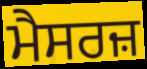
ਮੈਸਰਜ਼